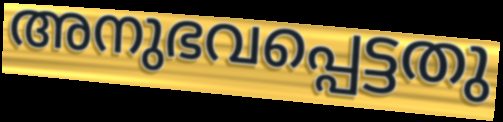
അനുഭവപ്പെട്ടതു